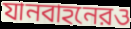
যানবাহনেরও